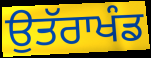
ਉਤੱਰਾਖੰਡ